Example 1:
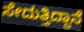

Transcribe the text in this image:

ಸೇದುತ್ತಿದ್ದಾನೆ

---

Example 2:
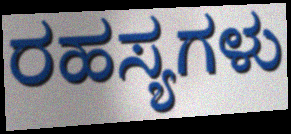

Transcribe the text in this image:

ರಹಸ್ಯಗಳು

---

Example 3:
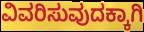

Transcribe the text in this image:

ವಿವರಿಸುವುದಕ್ಕಾಗಿ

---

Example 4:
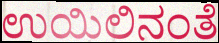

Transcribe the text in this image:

ಉಯಿಲಿನಂತೆ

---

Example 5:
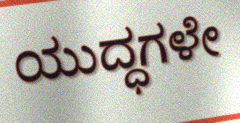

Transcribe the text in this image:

ಯುದ್ಧಗಳೇ